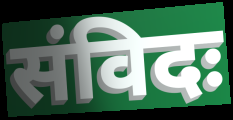
संविदः